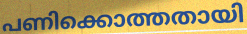
പണിക്കൊത്തതായി